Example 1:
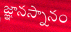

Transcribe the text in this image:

జ్ఞానస్నానం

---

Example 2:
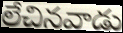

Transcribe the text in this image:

లేచినవాడు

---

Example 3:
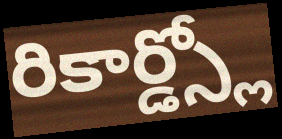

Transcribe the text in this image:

రికార్డ్స్లో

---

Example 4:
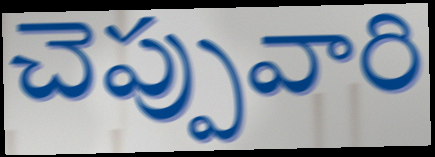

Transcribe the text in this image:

చెప్పువారి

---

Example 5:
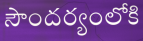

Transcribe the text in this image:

సౌందర్యంలోకి